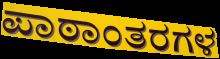
ಪಾಠಾಂತರಗಳ